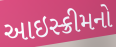
આઇસ્ક્રીમનો